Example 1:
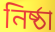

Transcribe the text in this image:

নিষ্ঠা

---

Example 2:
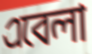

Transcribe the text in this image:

এবেলা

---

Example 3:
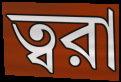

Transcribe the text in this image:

ত্বরা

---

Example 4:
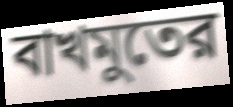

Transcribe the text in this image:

বাখমুতের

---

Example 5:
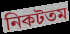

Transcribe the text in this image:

নিকটতম